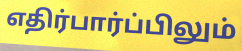
எதிர்பார்ப்பிலும்